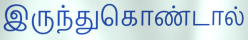
இருந்துகொண்டால்